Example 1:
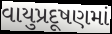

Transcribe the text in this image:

વાયુપ્રદૂષણમાં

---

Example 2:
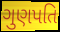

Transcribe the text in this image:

ગુણપતિ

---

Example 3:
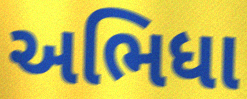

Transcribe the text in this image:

અભિધા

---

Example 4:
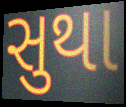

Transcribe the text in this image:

સુથા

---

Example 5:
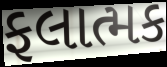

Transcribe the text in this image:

ફલાત્મક